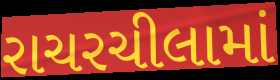
રાચરચીલામાં